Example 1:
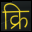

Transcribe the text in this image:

क्रि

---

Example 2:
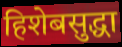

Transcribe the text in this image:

हिशेबसुद्धा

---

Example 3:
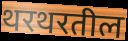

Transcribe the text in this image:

थरथरतील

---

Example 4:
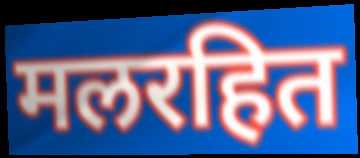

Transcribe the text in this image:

मलरहित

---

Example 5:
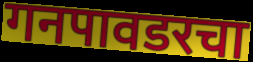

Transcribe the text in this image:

गनपावडरचा